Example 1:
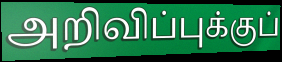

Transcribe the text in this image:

அறிவிப்புக்குப்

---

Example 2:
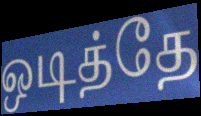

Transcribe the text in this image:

ஒடித்தே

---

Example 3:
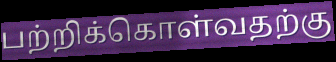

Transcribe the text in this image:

பற்றிக்கொள்வதற்கு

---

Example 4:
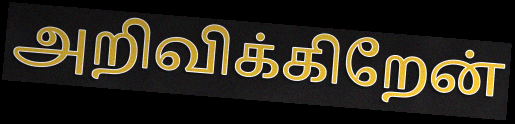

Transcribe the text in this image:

அறிவிக்கிறேன்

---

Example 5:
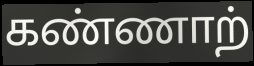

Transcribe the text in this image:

கண்ணாற்